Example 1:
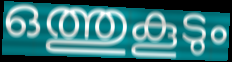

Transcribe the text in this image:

ഒത്തുകൂടും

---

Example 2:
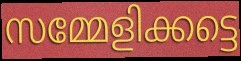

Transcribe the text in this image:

സമ്മേളിക്കട്ടെ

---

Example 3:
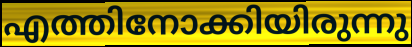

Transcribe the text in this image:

എത്തിനോക്കിയിരുന്നു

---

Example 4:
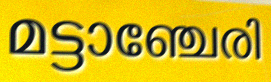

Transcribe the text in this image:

മട്ടാഞ്ചേരി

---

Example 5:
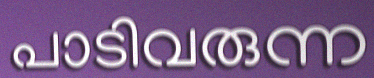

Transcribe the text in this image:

പാടിവരുന്ന